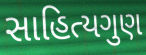
સાહિત્યગુણ